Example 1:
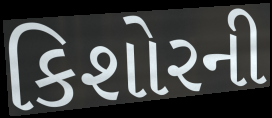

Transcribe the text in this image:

કિશોરની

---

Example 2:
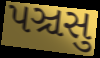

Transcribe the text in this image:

પઞ્ચસુ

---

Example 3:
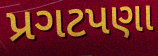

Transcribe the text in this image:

પ્રગટપણા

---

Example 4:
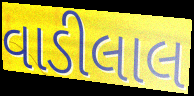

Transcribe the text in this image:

વાડીલાલ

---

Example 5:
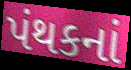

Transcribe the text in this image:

પંથકનાં